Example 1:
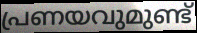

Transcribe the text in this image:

പ്രണയവുമുണ്ട്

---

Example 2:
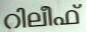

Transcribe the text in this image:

റിലീഫ്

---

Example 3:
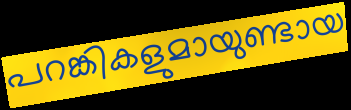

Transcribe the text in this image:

പറങ്കികളുമായുണ്ടായ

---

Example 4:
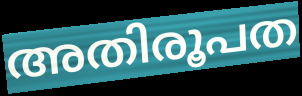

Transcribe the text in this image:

അതിരൂപത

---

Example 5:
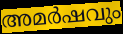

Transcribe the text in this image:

അമർഷവും